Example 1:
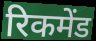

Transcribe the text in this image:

रिकमेंड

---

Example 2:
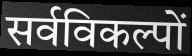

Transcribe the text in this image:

सर्वविकल्पों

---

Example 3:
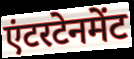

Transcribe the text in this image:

एंटरटेनमेंट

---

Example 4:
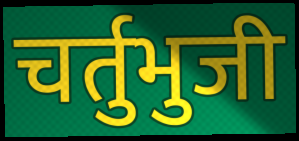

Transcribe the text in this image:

चर्तुभुजी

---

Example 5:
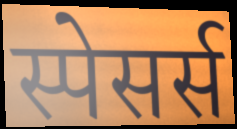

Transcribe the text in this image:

स्पेसर्स